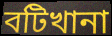
বটিখানা